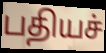
பதியச்